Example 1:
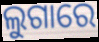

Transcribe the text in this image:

ଲୁଗାରେ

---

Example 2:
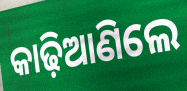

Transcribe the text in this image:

କାଢ଼ିଆଣିଲେ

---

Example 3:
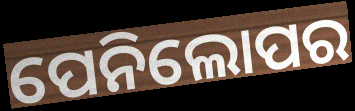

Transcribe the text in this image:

ପେନିଲୋପର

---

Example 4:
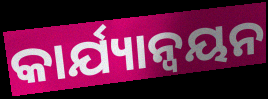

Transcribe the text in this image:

କାର୍ଯ୍ୟାନ୍ୱୟନ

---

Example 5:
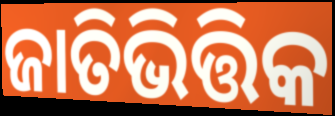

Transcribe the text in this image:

ଜାତିଭିତ୍ତିକ